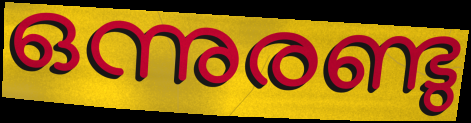
ഒന്നുരണ്ടു